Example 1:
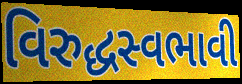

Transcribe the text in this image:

વિરુદ્ધસ્વભાવી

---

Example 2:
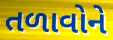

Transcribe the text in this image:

તળાવોને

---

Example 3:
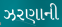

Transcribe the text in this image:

ઝરણાની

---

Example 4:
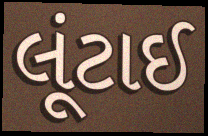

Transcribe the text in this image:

લૂંટાઈ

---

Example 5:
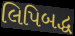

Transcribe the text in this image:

લિપિબદ્ધ